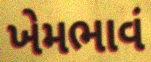
ખેમભાવં